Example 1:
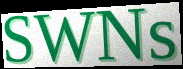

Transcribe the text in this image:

SWNs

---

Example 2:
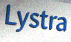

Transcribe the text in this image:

Lystra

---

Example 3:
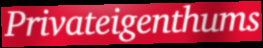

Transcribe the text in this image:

Privateigenthums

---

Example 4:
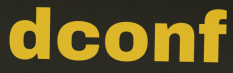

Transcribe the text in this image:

dconf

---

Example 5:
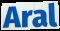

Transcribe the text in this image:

Aral